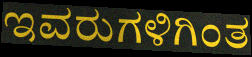
ಇವರುಗಳಿಗಿಂತ